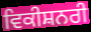
ਵਿਕੀਸ਼ਨਰੀ